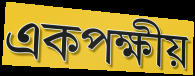
একপক্ষীয়